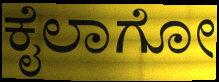
ಕೈಲಾಗೋ